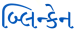
બ્લિન્કેન